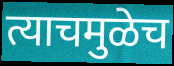
त्याचमुळेच